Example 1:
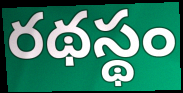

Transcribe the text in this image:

రథస్థం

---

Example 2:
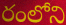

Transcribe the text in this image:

రంలోని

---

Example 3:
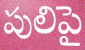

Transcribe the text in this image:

పులిపై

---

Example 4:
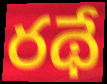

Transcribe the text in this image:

రథే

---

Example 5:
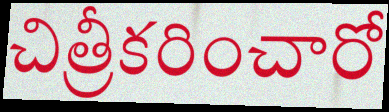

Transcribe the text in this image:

చిత్రీకరించారో